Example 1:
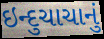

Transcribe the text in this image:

ઇન્દુચાચાનું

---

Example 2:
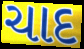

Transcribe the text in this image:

ચાદ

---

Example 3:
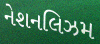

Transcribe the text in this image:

નેશનલિઝમ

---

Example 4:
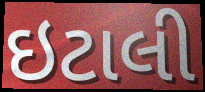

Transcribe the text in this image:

ઇટાલી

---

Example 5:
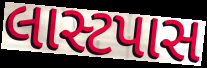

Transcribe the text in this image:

લાસ્ટપાસ